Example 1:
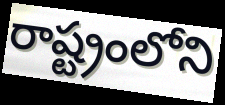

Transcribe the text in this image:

రాష్ట్రంలోని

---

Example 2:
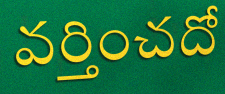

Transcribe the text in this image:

వర్తించదో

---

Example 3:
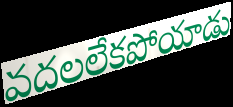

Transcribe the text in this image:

వదలలేకపోయాడు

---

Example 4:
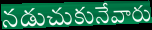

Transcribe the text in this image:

నడుచుకునేవారు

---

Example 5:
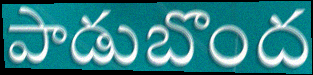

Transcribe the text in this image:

పాడుబొంద